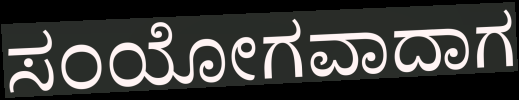
ಸಂಯೋಗವಾದಾಗ